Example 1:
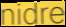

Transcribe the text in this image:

nidre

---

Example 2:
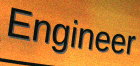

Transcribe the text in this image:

Engineer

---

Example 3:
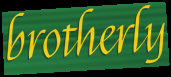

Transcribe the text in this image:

brotherly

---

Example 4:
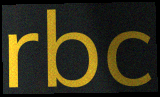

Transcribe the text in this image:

rbc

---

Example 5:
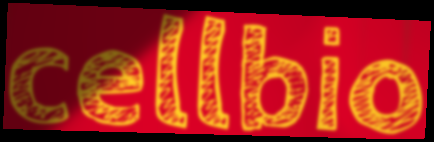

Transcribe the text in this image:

cellbio